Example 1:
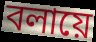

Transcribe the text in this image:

বলায়ে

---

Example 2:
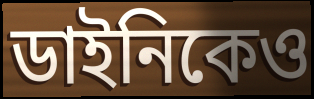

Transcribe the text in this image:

ডাইনিকেও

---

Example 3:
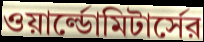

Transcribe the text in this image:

ওয়ার্ল্ডোমিটার্সের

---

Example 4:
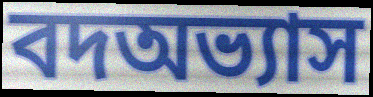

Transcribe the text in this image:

বদঅভ্যাস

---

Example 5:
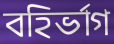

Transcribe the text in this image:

বহির্ভাগ